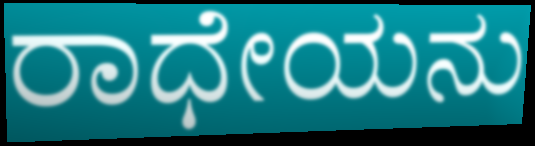
ರಾಧೇಯನು